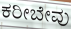
ಕರೀಬೇವು